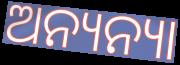
ଅନ୍ୟନ୍ୟା